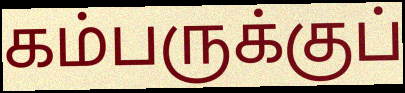
கம்பருக்குப்